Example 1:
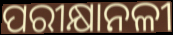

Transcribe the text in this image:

ପରୀକ୍ଷାନଳୀ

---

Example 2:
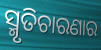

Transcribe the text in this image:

ସ୍ମୃତିଚାରଣାର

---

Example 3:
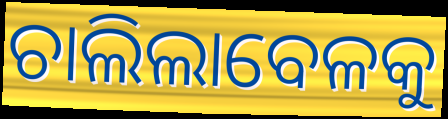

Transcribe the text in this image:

ଚାଲିଲାବେଳକୁ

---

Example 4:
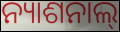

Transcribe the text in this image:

ନ୍ୟାଶନାଲ୍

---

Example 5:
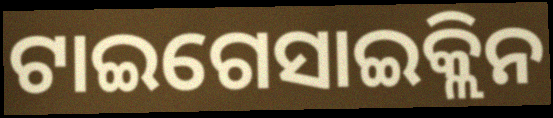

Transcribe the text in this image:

ଟାଇଗେସାଇକ୍ଲିନ